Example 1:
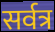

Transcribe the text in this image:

सर्वत्र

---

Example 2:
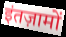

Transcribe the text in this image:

इंतज़ामों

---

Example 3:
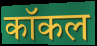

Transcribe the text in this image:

कॉकल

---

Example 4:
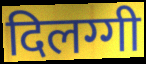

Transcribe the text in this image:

दिलग्गी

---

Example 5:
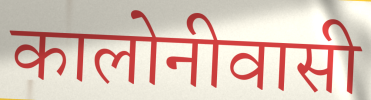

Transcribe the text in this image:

कालोनीवासी